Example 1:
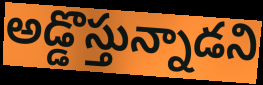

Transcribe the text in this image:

అడ్డొస్తున్నాడని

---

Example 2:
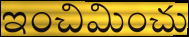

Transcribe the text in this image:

ఇంచిమించు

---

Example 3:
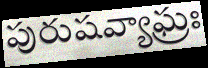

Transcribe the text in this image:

పురుషవ్యాఘ్రః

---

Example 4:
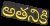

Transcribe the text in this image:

అతనికి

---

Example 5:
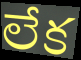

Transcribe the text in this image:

లేక